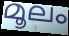
മൂലം